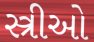
સ્ત્રીઓ